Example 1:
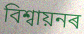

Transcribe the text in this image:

বিশ্বায়নৰ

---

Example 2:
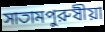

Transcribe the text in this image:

সাতামপুৰুষীয়া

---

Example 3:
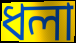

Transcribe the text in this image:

ধলা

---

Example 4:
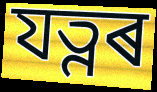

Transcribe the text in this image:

যত্নৰ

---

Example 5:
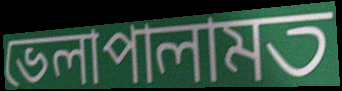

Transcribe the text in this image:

ভেলাপালামত